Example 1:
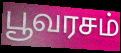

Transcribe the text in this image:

பூவரசம்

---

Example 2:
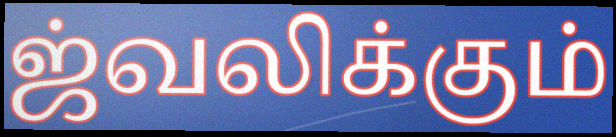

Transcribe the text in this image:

ஜ்வலிக்கும்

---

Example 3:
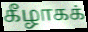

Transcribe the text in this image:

கீழாகக்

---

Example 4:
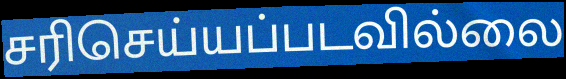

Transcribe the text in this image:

சரிசெய்யப்படவில்லை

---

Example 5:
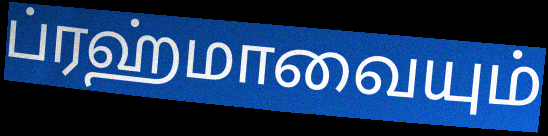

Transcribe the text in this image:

ப்ரஹ்மாவையும்